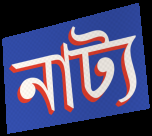
নাট্য